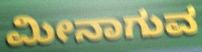
ಮೀನಾಗುವ